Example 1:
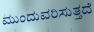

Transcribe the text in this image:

ಮುಂದುವರಿಸುತ್ತದೆ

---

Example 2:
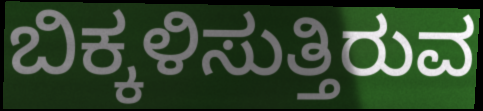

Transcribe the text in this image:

ಬಿಕ್ಕಳಿಸುತ್ತಿರುವ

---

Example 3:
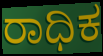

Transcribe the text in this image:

ರಾಧಿಕ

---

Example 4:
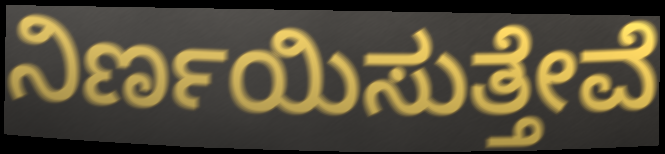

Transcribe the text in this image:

ನಿರ್ಣಯಿಸುತ್ತೇವೆ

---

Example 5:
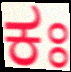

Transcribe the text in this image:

ಕಃ